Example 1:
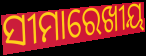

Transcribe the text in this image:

ସୀମାରେଖୀୟ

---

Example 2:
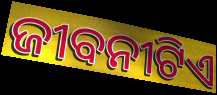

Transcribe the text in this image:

ଜୀବନୀଟିଏ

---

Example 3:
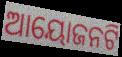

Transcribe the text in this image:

ଆୟୋଜନଟି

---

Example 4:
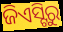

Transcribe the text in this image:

ଜିଏସ୍ଟିରୁ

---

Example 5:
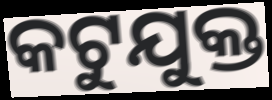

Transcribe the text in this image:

କଟୁଯୁକ୍ତ